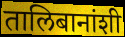
तालिबानांशी